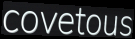
covetous